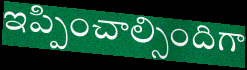
ఇప్పించాల్సిందిగా